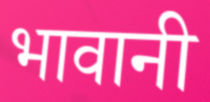
भावानी